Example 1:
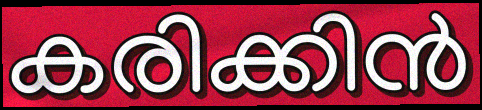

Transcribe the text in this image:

കരിക്കിൻ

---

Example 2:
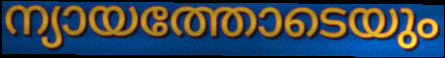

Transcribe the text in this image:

ന്യായത്തോടെയും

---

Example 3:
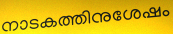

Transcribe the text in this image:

നാടകത്തിനുശേഷം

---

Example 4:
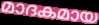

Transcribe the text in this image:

മാദകമായ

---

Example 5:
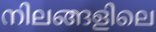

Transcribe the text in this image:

നിലങ്ങളിലെ